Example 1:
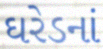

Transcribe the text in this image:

ઘરેડનાં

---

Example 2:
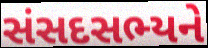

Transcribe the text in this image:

સંસદસભ્યને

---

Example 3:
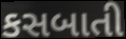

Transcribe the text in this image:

કસબાતી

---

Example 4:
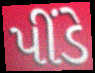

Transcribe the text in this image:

પીંડે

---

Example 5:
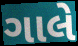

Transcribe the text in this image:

ગાલે